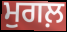
ਮੁਗਲ਼